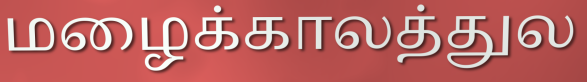
மழைக்காலத்துல